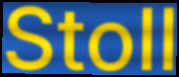
Stoll